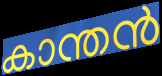
കാന്തൻ